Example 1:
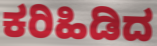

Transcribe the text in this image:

ಕರಿಹಿಡಿದ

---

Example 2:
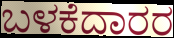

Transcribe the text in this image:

ಬಳಕೆದಾರರ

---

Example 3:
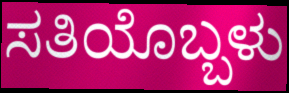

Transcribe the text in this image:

ಸತಿಯೊಬ್ಬಳು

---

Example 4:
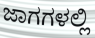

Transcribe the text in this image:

ಜಾಗಗಳಲ್ಲಿ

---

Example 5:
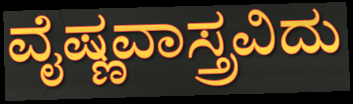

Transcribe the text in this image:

ವೈಷ್ಣವಾಸ್ತ್ರವಿದು